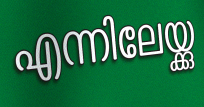
എന്നിലേയ്ക്കു